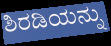
ಶಿರಡಿಯನ್ನು